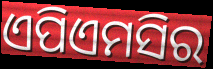
ଏପିଏମସିର